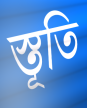
স্তূতি